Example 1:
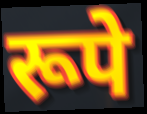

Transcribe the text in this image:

रूपे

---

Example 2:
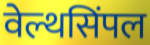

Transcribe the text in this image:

वेल्थसिंपल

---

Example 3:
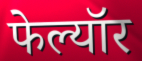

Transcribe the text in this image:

फेल्यॉर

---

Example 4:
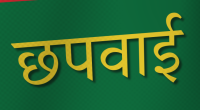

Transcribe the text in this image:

छपवाई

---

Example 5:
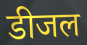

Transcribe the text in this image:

डीजल